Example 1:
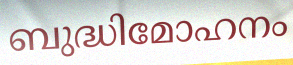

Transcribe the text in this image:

ബുദ്ധിമോഹനം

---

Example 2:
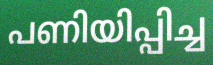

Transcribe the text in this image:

പണിയിപ്പിച്ച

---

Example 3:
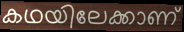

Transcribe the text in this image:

കഥയിലേക്കാണ്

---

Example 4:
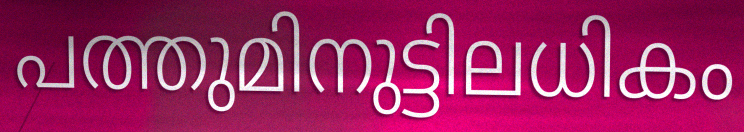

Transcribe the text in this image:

പത്തുമിനുട്ടിലധികം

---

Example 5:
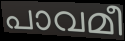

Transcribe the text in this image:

പാവമീ